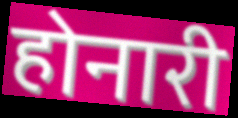
होनारी